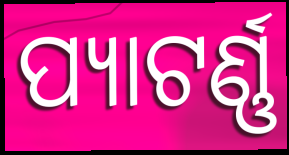
ପ୍ୟାଟର୍ଣ୍ଣ